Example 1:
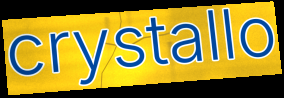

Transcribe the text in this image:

crystallo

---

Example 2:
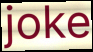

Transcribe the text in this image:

joke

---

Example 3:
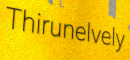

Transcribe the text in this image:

Thirunelvely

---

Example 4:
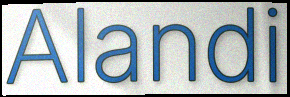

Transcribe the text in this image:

Alandi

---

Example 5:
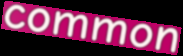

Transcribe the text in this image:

common